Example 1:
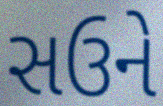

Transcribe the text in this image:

સઉને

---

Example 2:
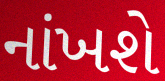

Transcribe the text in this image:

નાંખશે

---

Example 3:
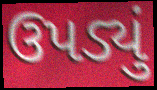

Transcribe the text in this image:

ઉપડ્યું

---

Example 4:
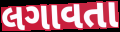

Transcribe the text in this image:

લગાવતા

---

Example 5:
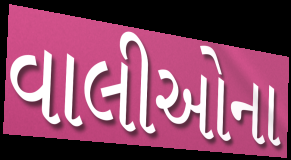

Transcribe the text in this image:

વાલીઓના